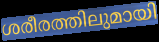
ശരീരത്തിലുമായി